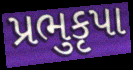
પ્રભુકૃપા